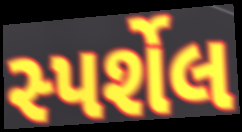
સ્પર્શેલ